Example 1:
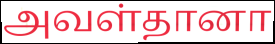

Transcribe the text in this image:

அவள்தானா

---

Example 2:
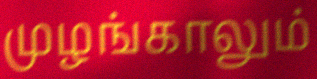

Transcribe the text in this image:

முழங்காலும்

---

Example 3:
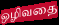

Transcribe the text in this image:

ஒழிவதை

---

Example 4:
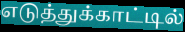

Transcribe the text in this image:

எடுத்துக்காட்டில்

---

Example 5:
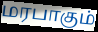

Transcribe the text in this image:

மரபாகும்